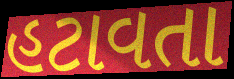
હટાવતા